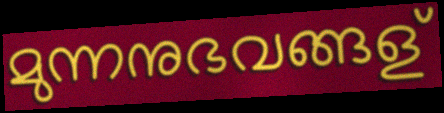
മുന്നനുഭവങ്ങള്